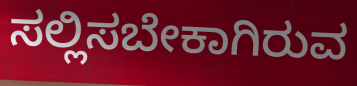
ಸಲ್ಲಿಸಬೇಕಾಗಿರುವ